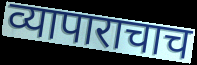
व्यापाराचाच